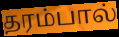
தரம்பால்